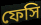
ফেসি